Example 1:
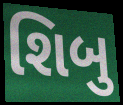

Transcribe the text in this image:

શિબુ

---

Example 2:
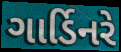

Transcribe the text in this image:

ગાર્ડિનરે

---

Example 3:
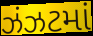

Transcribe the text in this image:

ઝંઝટમાં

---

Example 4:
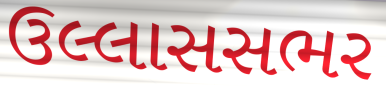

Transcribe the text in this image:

ઉલ્લાસસભર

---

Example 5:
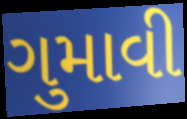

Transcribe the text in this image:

ગુમાવી